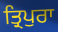
ਤ੍ਰਿਪੁਰਾ